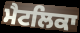
ਮੈਟਲਿਕਾ